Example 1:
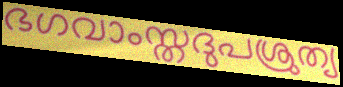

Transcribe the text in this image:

ഭഗവാംസ്തദുപശ്രുത്യ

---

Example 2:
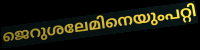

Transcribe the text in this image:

ജെറുശലേമിനെയുംപറ്റി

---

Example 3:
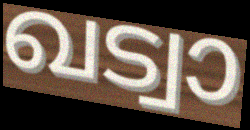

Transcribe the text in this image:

ഖട്വാ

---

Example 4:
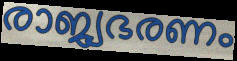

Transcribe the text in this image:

രാജ്യഭരണം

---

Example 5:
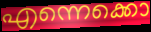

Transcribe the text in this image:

എന്നെക്കൊ